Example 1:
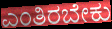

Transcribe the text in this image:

ಎಂತಿರಬೇಕು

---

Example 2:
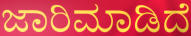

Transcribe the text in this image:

ಜಾರಿಮಾಡಿದೆ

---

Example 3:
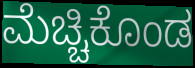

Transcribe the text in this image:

ಮೆಚ್ಚಿಕೊಂಡ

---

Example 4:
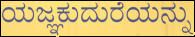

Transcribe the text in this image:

ಯಜ್ಞಕುದುರೆಯನ್ನು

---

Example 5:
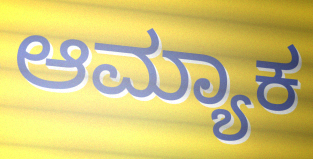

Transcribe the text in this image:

ಆಮ್ಯಾಕ